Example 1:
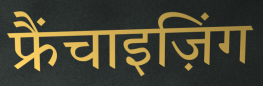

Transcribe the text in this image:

फ्रैंचाइज़िंग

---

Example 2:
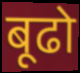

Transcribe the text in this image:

बूढो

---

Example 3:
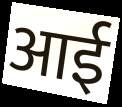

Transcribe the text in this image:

आई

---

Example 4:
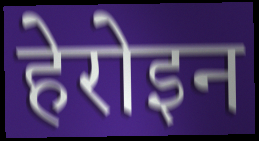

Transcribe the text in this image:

हेरोइन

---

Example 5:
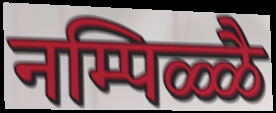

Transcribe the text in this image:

नम्पिळ्ळै